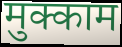
मुक्काम